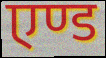
एण्ड